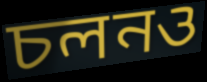
চলনও